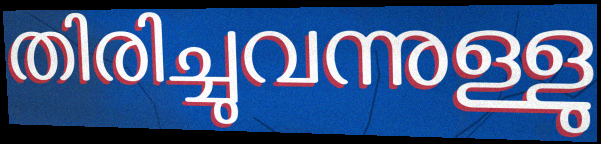
തിരിച്ചുവന്നുള്ളു